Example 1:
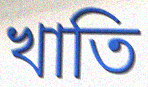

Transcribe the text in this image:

খাতি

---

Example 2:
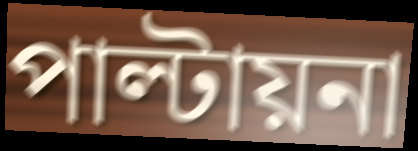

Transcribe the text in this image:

পাল্টায়না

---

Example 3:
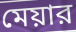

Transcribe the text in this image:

মেয়ার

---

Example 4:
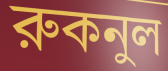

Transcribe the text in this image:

রুকনুল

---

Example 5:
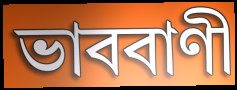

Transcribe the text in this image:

ভাববাণী